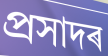
প্ৰসাদৰ